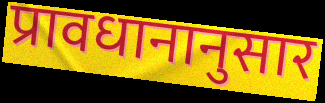
प्रावधानानुसार